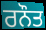
ਰਨੌਤ